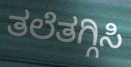
ತಲೆತಗ್ಗಿಸಿ